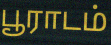
பூராடம்